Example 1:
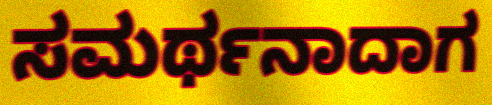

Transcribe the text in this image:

ಸಮರ್ಥನಾದಾಗ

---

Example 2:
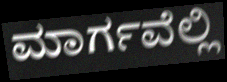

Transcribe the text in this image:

ಮಾರ್ಗವೆಲ್ಲಿ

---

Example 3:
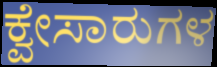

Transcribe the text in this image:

ಕ್ವೇಸಾರುಗಳ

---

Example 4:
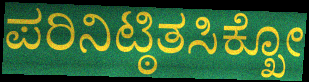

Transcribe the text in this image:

ಪರಿನಿಟ್ಠಿತಸಿಕ್ಖೋ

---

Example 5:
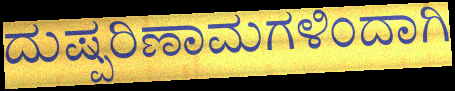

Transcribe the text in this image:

ದುಷ್ಪರಿಣಾಮಗಳಿಂದಾಗಿ